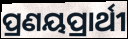
ପ୍ରଣୟପ୍ରାର୍ଥୀ